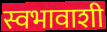
स्वभावाशी